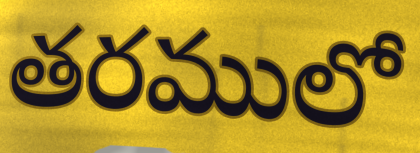
తరములో